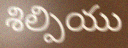
శిల్పియు